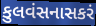
કુલવંસનાસકરં